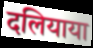
दलियाया